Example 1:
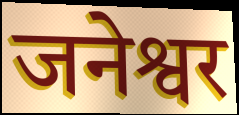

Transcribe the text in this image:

जनेश्वर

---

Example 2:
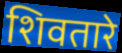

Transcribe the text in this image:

शिवतारे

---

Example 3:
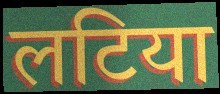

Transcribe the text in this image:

लटिया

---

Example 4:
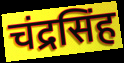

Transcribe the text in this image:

चंद्रसिंह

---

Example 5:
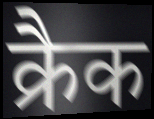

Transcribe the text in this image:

क्रैक